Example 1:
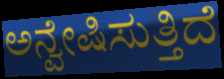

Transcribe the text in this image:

ಅನ್ವೇಷಿಸುತ್ತಿದೆ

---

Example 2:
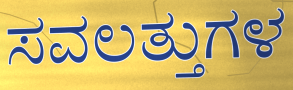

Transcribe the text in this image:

ಸವಲತ್ತುಗಳ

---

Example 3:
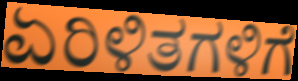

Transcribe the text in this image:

ಏರಿಳಿತಗಳಿಗೆ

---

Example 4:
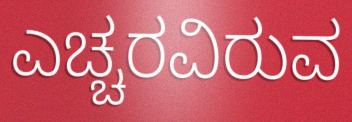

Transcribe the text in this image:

ಎಚ್ಚರವಿರುವ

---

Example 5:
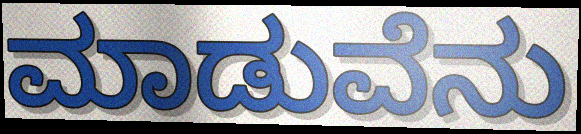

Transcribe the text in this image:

ಮಾಡುವೆನು